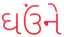
ઘઉંને